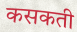
कसकती